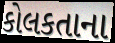
કોલકતાના